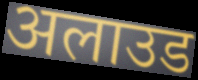
अलाउड